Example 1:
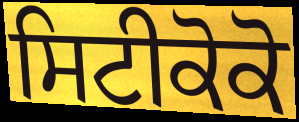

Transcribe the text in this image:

ਸਿਟੀਕੋਕੋ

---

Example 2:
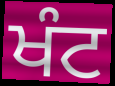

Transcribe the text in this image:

ਖੰਟ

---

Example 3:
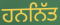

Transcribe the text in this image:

ਹਨਨਿੱਤ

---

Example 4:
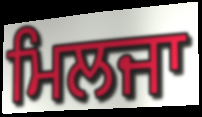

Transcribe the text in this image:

ਮਿਲਜਾ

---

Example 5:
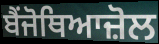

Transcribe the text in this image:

ਬੈਂਜੋਥਿਆਜ਼ੋਲ